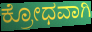
ಕ್ರೋಧವಾಗಿ